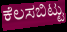
ಕೆಲಸಬಿಟ್ಟು